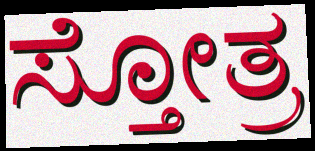
ಸ್ತೋತ್ರ